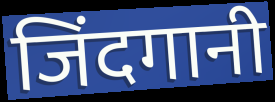
जिंदगानी